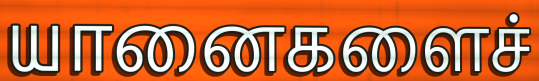
யானைகளைச்